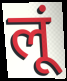
लूं